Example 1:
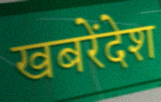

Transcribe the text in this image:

खबरेंदेश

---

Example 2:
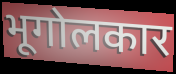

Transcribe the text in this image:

भूगोलकार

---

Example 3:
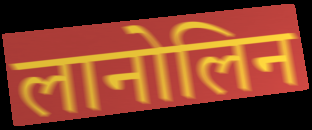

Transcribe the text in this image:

लानोलिन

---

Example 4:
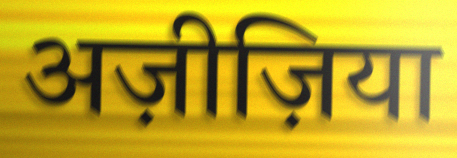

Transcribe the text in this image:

अज़ीज़िया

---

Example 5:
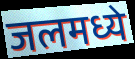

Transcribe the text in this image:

जलमध्ये